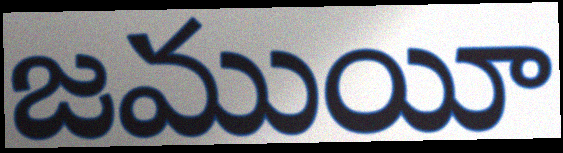
జముయీ